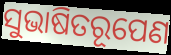
ସୁଭାଷିତରୂପେଣ